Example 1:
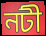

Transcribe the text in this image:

নটী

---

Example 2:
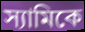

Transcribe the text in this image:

স্যামিকে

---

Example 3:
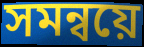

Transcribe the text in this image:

সমন্বয়ে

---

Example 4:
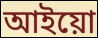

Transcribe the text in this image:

আইয়ো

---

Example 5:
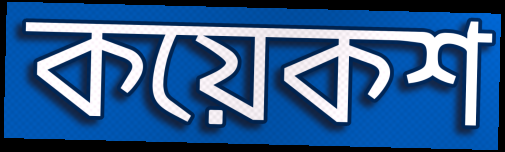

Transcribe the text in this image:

কয়েকশ